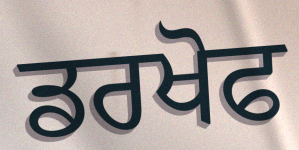
ਡਰਖੋਫ